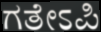
ಗತೇಽಪಿ